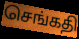
செங்கதி